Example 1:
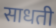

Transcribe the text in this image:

साधती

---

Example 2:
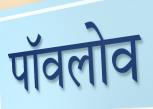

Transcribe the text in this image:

पॉवलोव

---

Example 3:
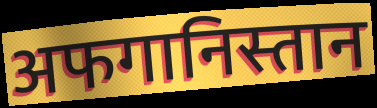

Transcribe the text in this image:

अफगानिस्तान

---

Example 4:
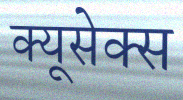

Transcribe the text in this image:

क्यूसेक्स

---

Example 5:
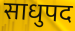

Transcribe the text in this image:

साधुपद